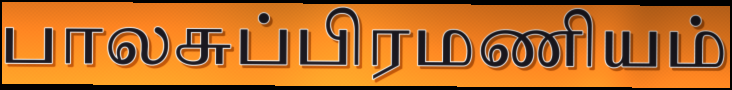
பாலசுப்பிரமணியம்